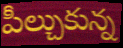
పీల్చుకున్న